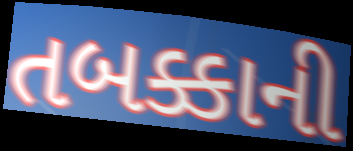
તબક્કાની